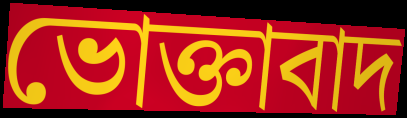
ভোক্তাবাদ